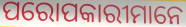
ପରୋପକାରୀମାନେ